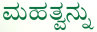
ಮಹತ್ವನ್ನು